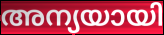
അന്യയായി